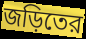
জড়িতের